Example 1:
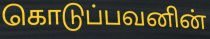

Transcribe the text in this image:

கொடுப்பவனின்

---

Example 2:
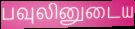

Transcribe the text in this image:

பவுலினுடைய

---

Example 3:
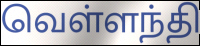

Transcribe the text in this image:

வெள்ளந்தி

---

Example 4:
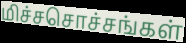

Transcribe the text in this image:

மிச்சசொச்சங்கள்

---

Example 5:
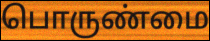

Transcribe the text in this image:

பொருண்மை